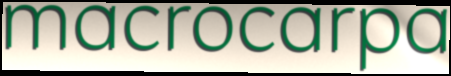
macrocarpa